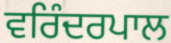
ਵਰਿੰਦਰਪਾਲ